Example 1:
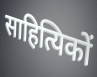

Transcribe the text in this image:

साहित्यिकों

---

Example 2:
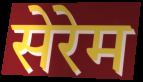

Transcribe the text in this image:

सेरेम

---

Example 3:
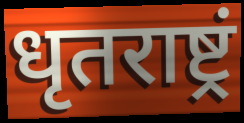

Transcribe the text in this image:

धृतराष्ट्रं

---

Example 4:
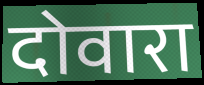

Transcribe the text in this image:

दोवारा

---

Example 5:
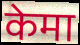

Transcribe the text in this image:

केमा